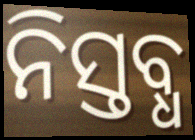
ନିସ୍ତବ୍ଧ